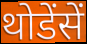
थोडेंसें